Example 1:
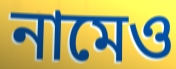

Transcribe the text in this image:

নামেও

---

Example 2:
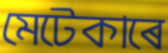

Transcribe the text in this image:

মেটেকাৰে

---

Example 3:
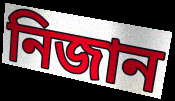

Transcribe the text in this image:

নিজান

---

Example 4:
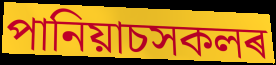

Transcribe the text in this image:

পানিয়াচসকলৰ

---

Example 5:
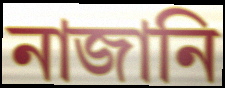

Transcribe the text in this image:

নাজানি